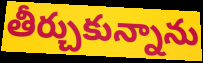
తీర్చుకున్నాను